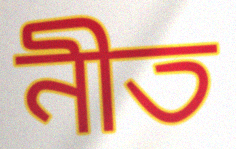
নীত